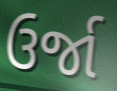
ઉર્જા